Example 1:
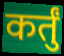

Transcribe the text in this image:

कर्तुं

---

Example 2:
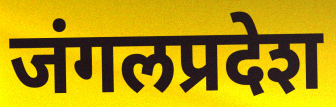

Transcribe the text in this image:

जंगलप्रदेश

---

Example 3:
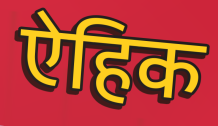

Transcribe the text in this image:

ऐहिक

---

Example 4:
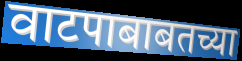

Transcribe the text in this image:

वाटपाबाबतच्या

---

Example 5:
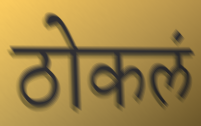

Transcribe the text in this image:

ठोकलं